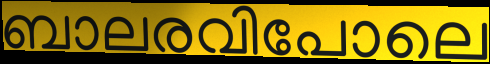
ബാലരവിപോലെ